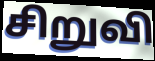
சிறுவி